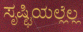
ಸೃಷ್ಟಿಯಲ್ಲೆಲ್ಲ